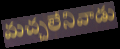
మచ్చలేనివాడు